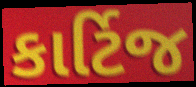
કાર્ટિજ